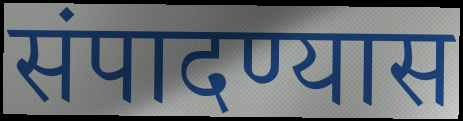
संपादण्यास